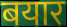
बयार